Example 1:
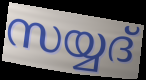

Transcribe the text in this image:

സയ്യദ്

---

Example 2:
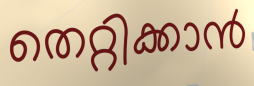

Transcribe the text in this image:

തെറ്റിക്കാൻ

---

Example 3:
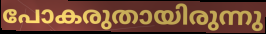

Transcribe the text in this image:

പോകരുതായിരുന്നു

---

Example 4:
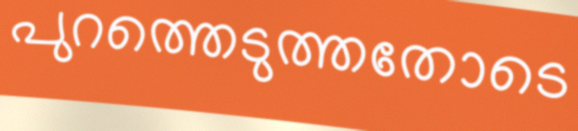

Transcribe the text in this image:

പുറത്തെടുത്തതോടെ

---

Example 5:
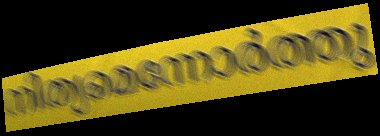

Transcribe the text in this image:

നിത്യമെന്നോർത്തു